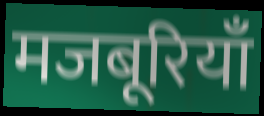
मजबूरियाँ